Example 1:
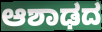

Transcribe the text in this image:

ಆಶಾಢದ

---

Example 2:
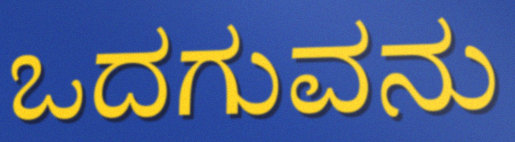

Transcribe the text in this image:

ಒದಗುವನು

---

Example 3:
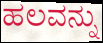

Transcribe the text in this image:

ಹಲವನ್ನು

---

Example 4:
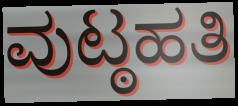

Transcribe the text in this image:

ವುಟ್ಠಹತಿ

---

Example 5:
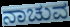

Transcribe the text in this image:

ನಾಚುವ